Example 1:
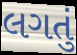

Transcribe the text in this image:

લગતું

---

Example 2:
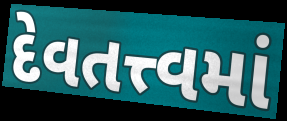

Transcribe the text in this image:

દેવતત્ત્વમાં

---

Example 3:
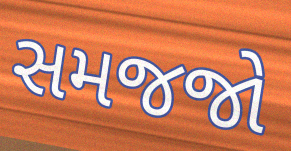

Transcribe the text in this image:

સમજજો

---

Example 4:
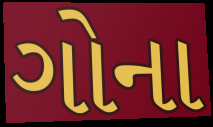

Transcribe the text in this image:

ગોના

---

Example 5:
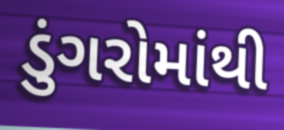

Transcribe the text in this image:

ડુંગરોમાંથી